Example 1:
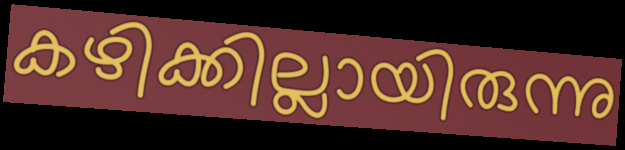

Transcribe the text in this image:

കഴിക്കില്ലായിരുന്നു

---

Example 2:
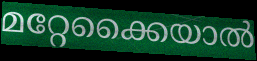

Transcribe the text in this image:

മറ്റേക്കൈയാൽ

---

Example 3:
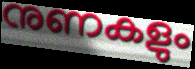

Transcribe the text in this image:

നുണകളും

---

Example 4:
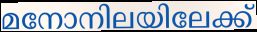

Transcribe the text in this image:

മനോനിലയിലേക്ക്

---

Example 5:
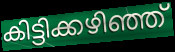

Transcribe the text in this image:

കിട്ടിക്കഴിഞ്ഞ്